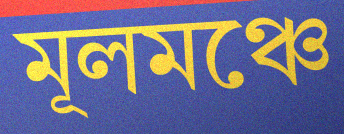
মূলমঞ্চে